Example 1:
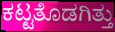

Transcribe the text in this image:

ಕಟ್ಟತೊಡಗಿತ್ತು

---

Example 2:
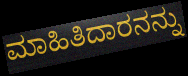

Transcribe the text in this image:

ಮಾಹಿತಿದಾರನನ್ನು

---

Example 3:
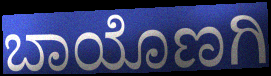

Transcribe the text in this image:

ಬಾಯೊಣಗಿ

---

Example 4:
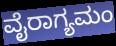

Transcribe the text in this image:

ವೈರಾಗ್ಯಮಂ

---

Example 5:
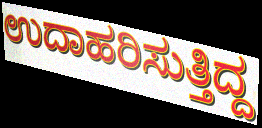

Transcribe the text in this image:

ಉದಾಹರಿಸುತ್ತಿದ್ದ